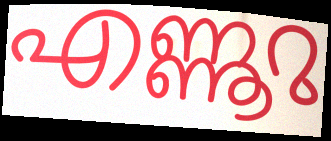
എണ്ണൂറു